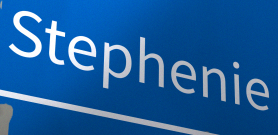
Stephenie